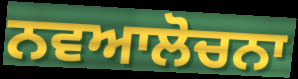
ਨਵਆਲੋਚਨਾ